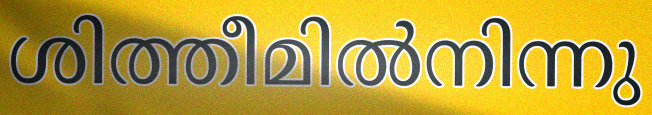
ശിത്തീമിൽനിന്നു